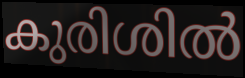
കുരിശിൽ